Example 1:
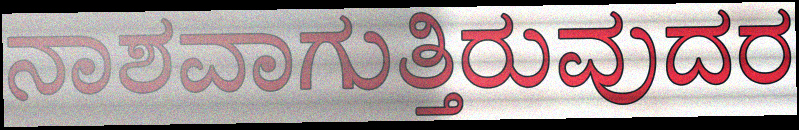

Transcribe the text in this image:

ನಾಶವಾಗುತ್ತಿರುವುದರ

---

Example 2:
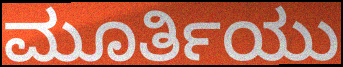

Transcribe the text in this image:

ಮೂರ್ತಿಯು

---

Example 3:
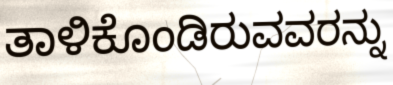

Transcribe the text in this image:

ತಾಳಿಕೊಂಡಿರುವವರನ್ನು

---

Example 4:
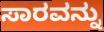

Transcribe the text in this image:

ಸಾರವನ್ನು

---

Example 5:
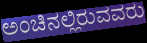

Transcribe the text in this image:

ಅಂಚಿನಲ್ಲಿರುವವರು